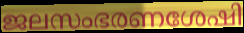
ജലസംഭരണശേഷി